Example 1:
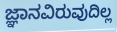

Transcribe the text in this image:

ಜ್ಞಾನವಿರುವುದಿಲ್ಲ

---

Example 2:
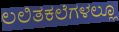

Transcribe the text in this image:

ಲಲಿತಕಲೆಗಳಲ್ಲೂ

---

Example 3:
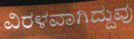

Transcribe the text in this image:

ವಿರಳವಾಗಿದ್ದುವು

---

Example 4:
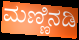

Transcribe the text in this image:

ಮಣ್ಣಿನಡಿ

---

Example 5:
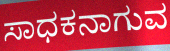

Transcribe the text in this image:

ಸಾಧಕನಾಗುವ